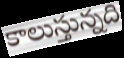
కాలుస్తున్నది